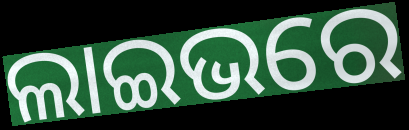
ଲାଇଭରେ